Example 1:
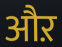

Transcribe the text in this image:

औऱ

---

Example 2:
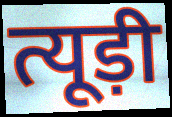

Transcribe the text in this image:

त्यूड़ी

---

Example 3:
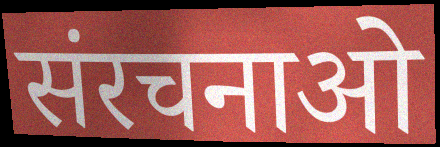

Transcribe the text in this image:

संरचनाओ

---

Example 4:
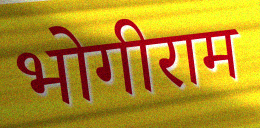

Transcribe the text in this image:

भोगीराम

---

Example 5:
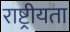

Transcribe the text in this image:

राष्ट्रीयता